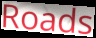
Roads